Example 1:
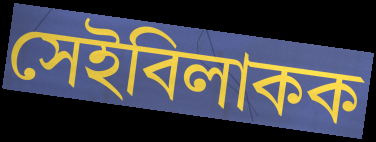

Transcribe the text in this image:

সেইবিলাকক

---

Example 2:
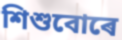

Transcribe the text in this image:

শিশুবোৰে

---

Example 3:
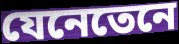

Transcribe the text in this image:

যেনেতেনে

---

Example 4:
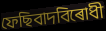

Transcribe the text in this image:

ফেছিবাদবিৰোধী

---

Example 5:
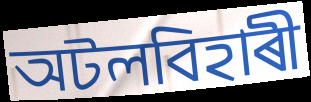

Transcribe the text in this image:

অটলবিহাৰী